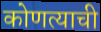
कोणत्याची